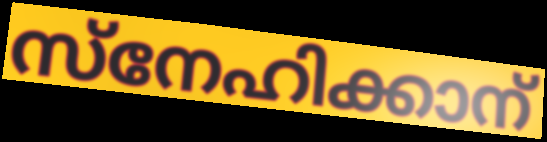
സ്നേഹിക്കാന്